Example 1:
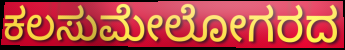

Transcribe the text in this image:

ಕಲಸುಮೇಲೋಗರದ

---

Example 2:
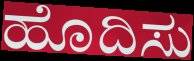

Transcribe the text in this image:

ಹೊದಿಸು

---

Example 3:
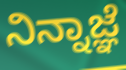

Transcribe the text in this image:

ನಿನ್ನಾಜ್ಞೆ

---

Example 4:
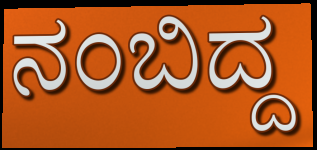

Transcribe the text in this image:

ನಂಬಿದ್ದ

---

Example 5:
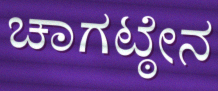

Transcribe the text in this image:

ಚಾಗಟ್ಠೇನ